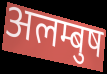
अलम्बुष